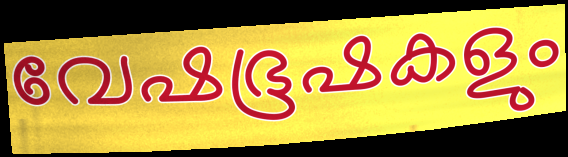
വേഷഭൂഷകളും